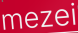
mezei